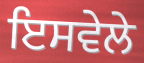
ਇਸਵੇਲੇ